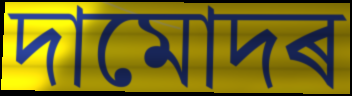
দামোদৰ